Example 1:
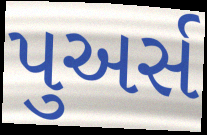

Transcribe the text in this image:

પુઅર્સ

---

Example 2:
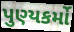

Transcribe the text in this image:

પુણ્યકર્મો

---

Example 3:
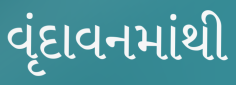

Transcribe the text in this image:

વૃંદાવનમાંથી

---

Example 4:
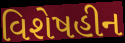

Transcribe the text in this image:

વિશેષહીન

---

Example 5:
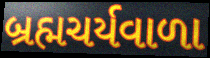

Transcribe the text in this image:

બ્રહ્મચર્યવાળા